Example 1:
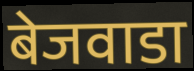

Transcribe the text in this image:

बेजवाडा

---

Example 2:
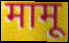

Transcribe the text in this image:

मामू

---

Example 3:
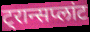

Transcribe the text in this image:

ट्रान्सप्लांट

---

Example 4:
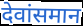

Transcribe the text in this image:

देवांसमान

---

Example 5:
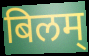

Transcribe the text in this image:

बिलम्